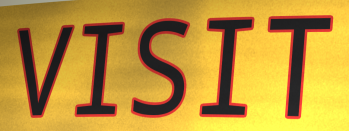
VISIT